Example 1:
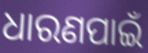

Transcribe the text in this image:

ଧାରଣପାଇଁ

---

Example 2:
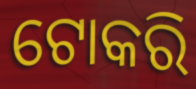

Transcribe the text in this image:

ଟୋକରି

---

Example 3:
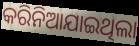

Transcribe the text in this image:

କରିନିଆଯାଇଥିଲା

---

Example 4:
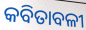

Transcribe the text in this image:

କବିତାବଳୀ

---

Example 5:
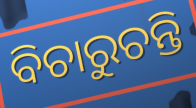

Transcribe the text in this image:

ବିଚାରୁଚନ୍ତି